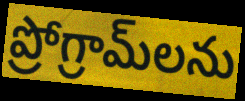
ప్రోగ్రామ్‌లను